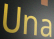
Una